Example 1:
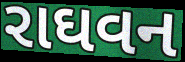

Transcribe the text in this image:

રાઘવન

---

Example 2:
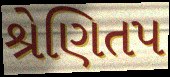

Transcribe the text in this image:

શ્રેણિતપ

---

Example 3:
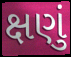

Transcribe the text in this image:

ક્ષણું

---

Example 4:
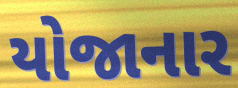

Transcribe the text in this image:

યોજાનાર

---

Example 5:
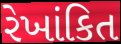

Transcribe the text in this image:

રેખાંકિત